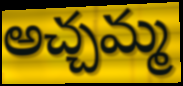
అచ్చమ్మ